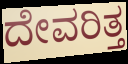
ದೇವರಿತ್ತ